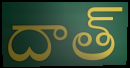
దాత్